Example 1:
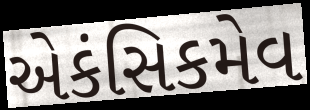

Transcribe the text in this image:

એકંસિકમેવ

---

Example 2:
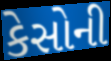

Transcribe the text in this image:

કેસોની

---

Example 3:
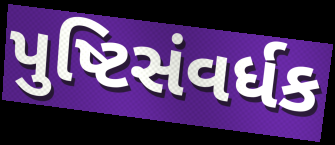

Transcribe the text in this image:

પુષ્ટિસંવર્ધક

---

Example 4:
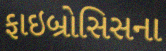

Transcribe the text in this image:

ફાઇબ્રોસિસના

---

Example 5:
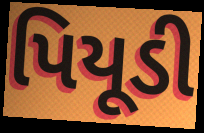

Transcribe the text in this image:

પિયૂડી